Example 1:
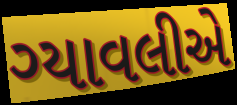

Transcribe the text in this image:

ગ્યાવલીએ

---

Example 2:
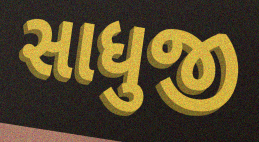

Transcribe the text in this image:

સાધુજી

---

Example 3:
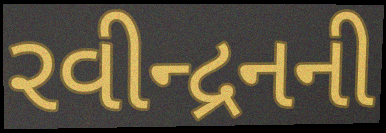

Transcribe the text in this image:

રવીન્દ્રનની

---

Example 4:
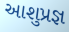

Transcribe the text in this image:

આશુપ્રજ્ઞ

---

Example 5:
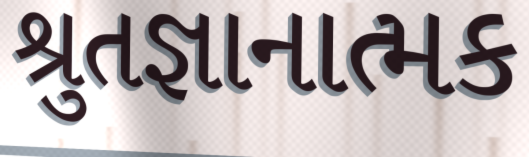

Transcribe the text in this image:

શ્રુતજ્ઞાનાત્મક